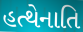
હત્થેનાતિ